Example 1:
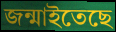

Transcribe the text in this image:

জন্মাইতেছে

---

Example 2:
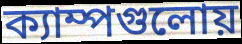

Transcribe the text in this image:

ক্যাম্পগুলোয়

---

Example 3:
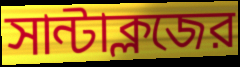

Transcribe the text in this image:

সান্টাক্লজের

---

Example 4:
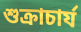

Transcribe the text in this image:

শুক্রাচার্য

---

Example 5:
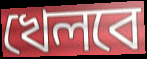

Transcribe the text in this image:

খেলবে